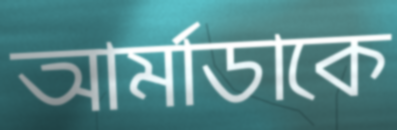
আর্মাডাকে